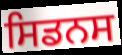
ਸਿਡਨਸ